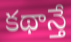
కథాన్తే